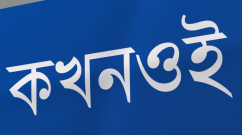
কখনওই